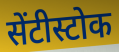
सेंटीस्टोक